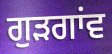
ਗੁਡ਼ਗਾਂਵ